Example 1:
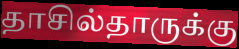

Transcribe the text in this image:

தாசில்தாருக்கு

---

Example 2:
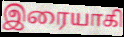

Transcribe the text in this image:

இரையாகி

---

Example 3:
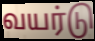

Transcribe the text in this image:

வயர்டு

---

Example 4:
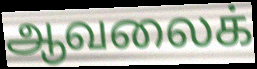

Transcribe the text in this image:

ஆவலைக்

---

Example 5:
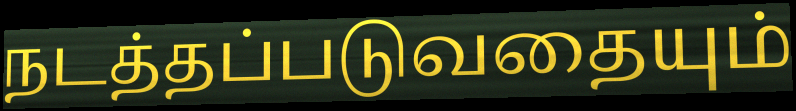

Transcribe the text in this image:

நடத்தப்படுவதையும்